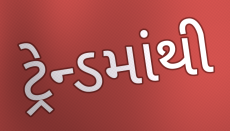
ટ્રેન્ડમાંથી